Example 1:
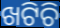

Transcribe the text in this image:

ଖଟିଚି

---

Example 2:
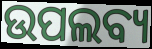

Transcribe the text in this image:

ଉପଲବ୍ୟ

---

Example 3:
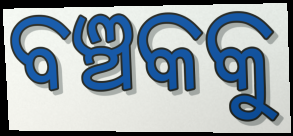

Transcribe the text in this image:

ବଞ୍ଚକକୁ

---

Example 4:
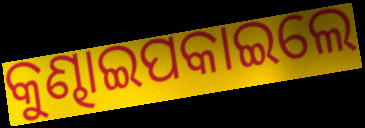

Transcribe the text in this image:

କୁଣ୍ଢାଇପକାଇଲେ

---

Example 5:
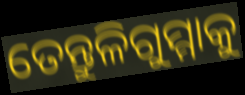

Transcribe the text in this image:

ତେନ୍ତୁଳିଗୁମ୍ମାକୁ